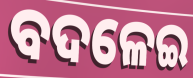
ବଦଳେଇ